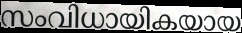
സംവിധായികയായ